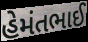
હેમંતભાઈ